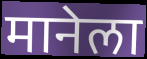
मानेला